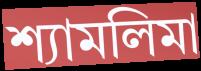
শ্যামলিমা